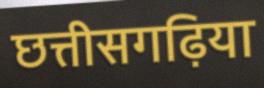
छत्तीसगढ़िया